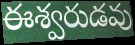
ఈశ్వరుడవు